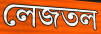
লেজতল